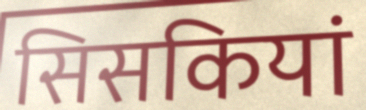
सिसकियां